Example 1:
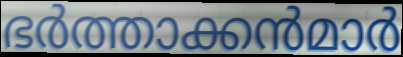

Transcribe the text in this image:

ഭർത്താക്കൻമാർ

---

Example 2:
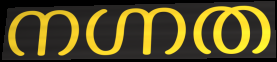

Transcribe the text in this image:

നഗ്നത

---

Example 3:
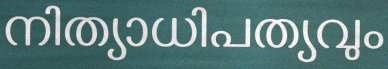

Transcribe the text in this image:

നിത്യാധിപത്യവും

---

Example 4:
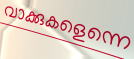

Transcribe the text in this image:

വാക്കുകളെന്നെ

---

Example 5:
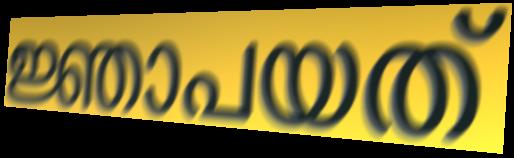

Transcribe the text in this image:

ജ്ഞാപയത്